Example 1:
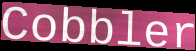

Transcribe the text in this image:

Cobbler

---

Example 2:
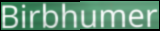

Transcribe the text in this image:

Birbhumer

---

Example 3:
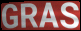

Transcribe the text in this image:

GRAS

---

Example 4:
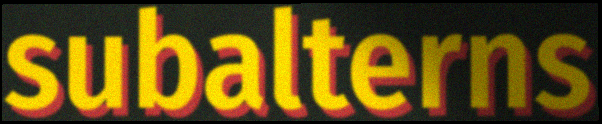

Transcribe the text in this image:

subalterns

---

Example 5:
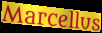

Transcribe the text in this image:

Marcellus